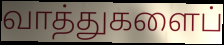
வாத்துகளைப்